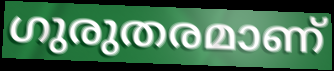
ഗുരുതരമാണ്